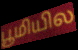
பூமியில